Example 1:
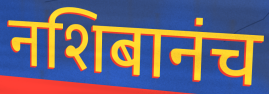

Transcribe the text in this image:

नशिबानंच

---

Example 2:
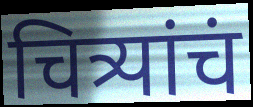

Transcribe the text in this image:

चित्र्यांचं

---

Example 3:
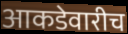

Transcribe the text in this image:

आकडेवारीच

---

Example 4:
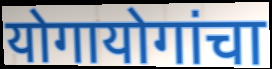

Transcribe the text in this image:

योगायोगांचा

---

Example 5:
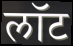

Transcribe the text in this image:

लॉट